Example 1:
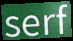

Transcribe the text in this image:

serf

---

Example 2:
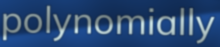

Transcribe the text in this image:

polynomially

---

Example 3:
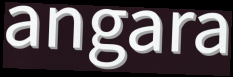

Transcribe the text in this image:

angara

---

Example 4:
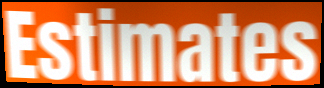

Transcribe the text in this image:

Estimates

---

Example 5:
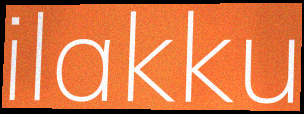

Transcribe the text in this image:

ilakku